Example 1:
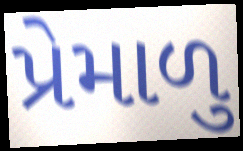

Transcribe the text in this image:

પ્રેમાળુ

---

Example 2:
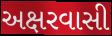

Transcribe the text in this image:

અક્ષરવાસી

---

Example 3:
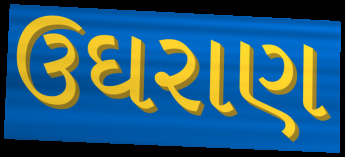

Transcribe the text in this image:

ઉઘરાણ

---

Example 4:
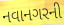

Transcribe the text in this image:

નવાનગરની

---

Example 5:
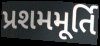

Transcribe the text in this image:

પ્રશમમૂર્તિ